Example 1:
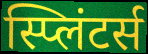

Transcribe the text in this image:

स्प्लिंटर्स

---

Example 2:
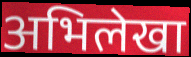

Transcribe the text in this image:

अभिलेखा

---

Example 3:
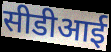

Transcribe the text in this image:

सीडीआई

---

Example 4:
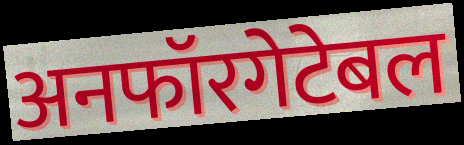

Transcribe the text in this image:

अनफॉरगेटेबल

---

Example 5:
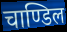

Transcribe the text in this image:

चाण्डिल